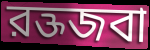
রক্তজবা